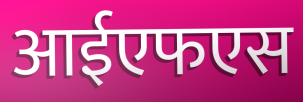
आईएफएस